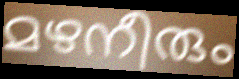
മഴനീരും